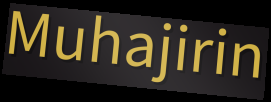
Muhajirin